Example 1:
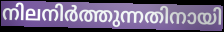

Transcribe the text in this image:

നിലനിർത്തുന്നതിനായി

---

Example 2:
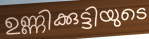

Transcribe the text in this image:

ഉണ്ണിക്കുട്ടിയുടെ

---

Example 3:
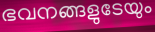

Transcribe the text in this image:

ഭവനങ്ങളുടേയും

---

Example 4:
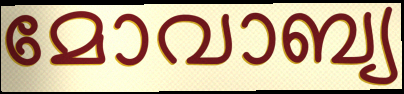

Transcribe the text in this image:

മോവാബ്യ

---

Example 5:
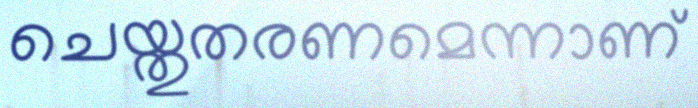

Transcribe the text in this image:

ചെയ്തുതരണമെന്നാണ്